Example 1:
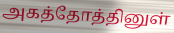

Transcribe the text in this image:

அகத்தோத்தினுள்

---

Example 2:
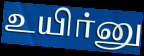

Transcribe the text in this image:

உயிர்னு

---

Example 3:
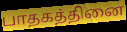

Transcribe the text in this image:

பாதகத்தினை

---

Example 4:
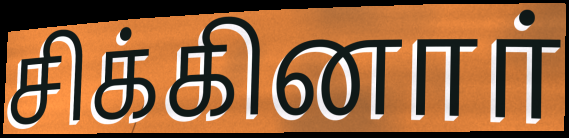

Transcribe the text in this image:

சிக்கினார்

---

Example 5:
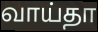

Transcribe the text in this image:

வாய்தா